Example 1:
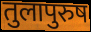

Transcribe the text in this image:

तुलापुरुष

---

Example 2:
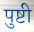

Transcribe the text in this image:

पुष्टी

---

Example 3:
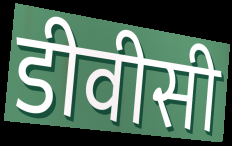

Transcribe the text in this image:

डीवीसी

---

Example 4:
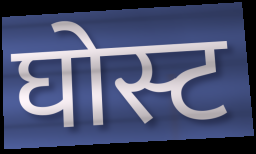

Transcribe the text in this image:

घोस्‍ट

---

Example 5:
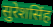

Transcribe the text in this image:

सुरेशसिंह